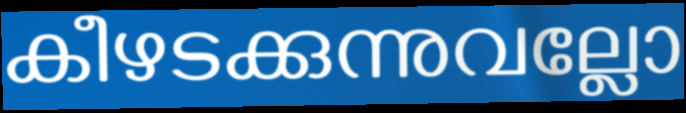
കീഴടക്കുന്നുവല്ലോ